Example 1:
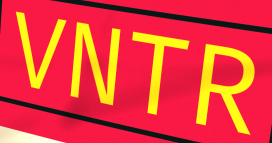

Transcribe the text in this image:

VNTR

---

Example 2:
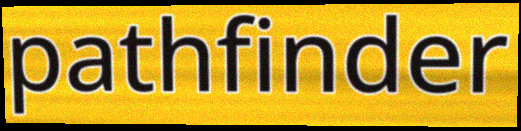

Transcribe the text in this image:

pathfinder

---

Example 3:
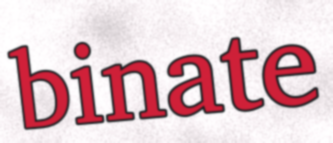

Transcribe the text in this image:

binate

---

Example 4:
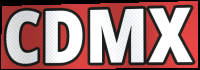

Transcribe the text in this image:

CDMX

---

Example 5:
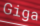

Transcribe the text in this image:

Giga